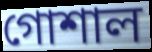
গোশাল